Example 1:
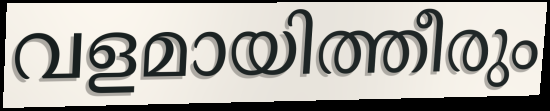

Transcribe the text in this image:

വളമായിത്തീരും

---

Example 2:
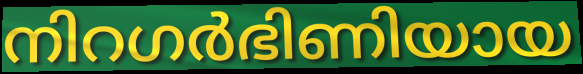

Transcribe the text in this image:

നിറഗർഭിണിയായ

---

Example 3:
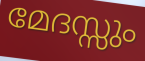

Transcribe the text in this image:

മേദസ്സും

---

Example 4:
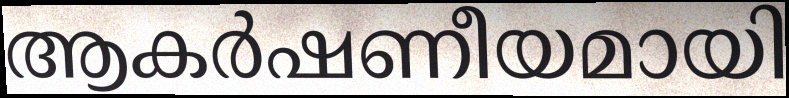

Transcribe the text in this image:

ആകർഷണീയമായി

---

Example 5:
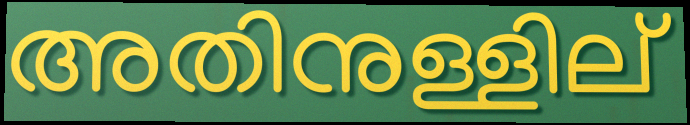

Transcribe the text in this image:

അതിനുള്ളില്